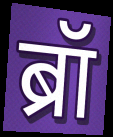
ब्रॉ